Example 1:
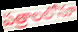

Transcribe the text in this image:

పత్రాలలోనూ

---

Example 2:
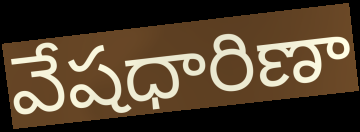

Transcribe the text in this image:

వేషధారిణా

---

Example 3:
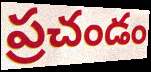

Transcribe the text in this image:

ప్రచండం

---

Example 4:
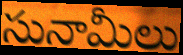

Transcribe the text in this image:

సునామీలు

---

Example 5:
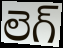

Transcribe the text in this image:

లెగ్